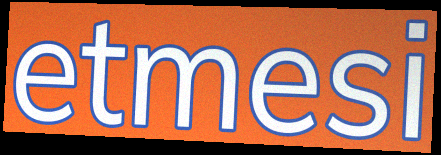
etmesi